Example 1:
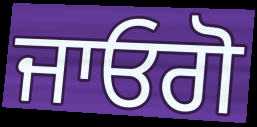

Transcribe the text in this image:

ਜਾਓਗੋ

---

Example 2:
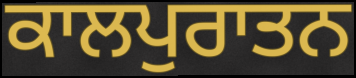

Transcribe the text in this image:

ਕਾਲਪੁਰਾਤਨ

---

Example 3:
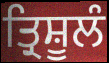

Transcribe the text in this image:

ਤ੍ਰਿਸ਼ੂਲੰ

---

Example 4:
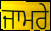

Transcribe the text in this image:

ਜਾਮਰੇ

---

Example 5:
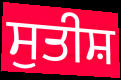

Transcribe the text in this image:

ਸੁਤੀਸ਼